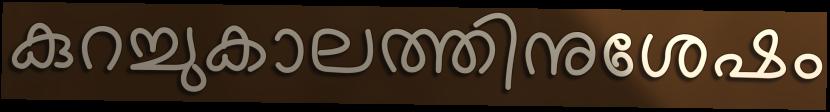
കുറച്ചുകാലത്തിനുശേഷം